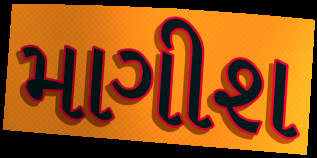
માગીશ